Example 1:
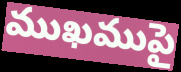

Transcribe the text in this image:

ముఖముపై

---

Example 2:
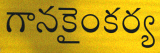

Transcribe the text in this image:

గానకైంకర్య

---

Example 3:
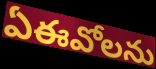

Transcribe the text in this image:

ఏఈవోలను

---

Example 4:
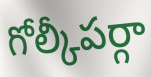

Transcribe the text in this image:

గోల్కీపర్గా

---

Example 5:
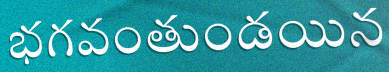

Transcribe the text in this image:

భగవంతుండయిన